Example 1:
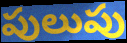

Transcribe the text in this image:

పులుపు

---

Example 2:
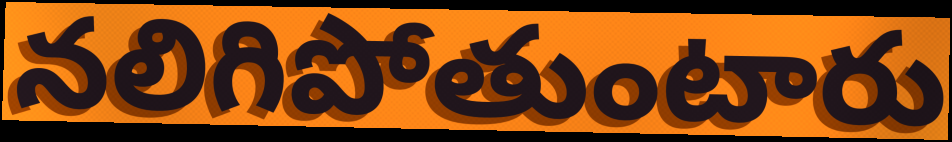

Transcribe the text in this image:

నలిగిపోతుంటారు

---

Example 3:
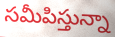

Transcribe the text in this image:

సమీపిస్తున్నా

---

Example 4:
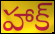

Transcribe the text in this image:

హాక్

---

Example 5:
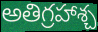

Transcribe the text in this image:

అతిగ్రహాశ్చ